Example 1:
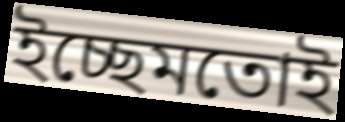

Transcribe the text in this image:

ইচ্ছেমতোই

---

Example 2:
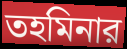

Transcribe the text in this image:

তহমিনার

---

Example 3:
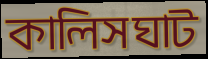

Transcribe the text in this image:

কালিসঘাট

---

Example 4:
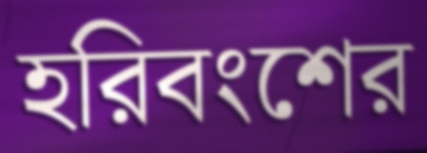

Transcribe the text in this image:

হরিবংশের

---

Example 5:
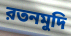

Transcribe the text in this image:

রতনমুদি